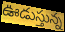
ఊడుస్తున్న